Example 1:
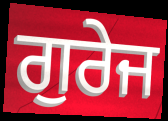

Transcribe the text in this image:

ਗੁਰੇਜ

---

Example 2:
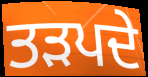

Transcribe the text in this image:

ਤੜਪਦੇ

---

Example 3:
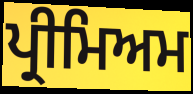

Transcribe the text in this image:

ਪ੍ਰੀਮਿਅਮ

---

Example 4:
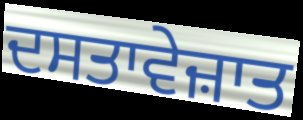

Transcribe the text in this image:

ਦਸਤਾਵੇਜ਼ਾਤ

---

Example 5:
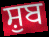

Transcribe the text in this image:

ਸ਼ੁਬ